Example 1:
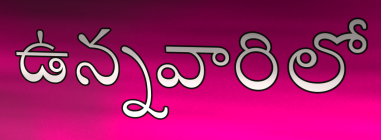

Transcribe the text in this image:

ఉన్నవారిలో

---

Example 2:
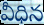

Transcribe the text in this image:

వీధిన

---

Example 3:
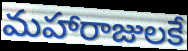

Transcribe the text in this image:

మహారాజులకే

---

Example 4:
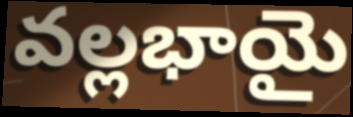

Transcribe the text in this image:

వల్లభాయై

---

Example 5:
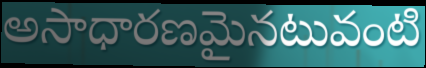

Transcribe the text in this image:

అసాధారణమైనటువంటి